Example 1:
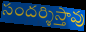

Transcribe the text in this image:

సందర్శిస్తావు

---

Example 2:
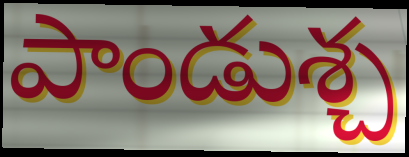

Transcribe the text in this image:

పాండుశ్చ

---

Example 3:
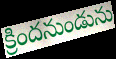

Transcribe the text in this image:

క్రిందనుండును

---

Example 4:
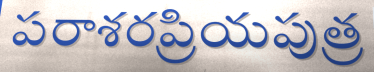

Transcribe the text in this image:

పరాశరప్రియపుత్ర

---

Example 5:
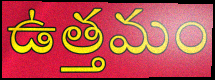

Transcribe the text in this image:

ఉత్తమం